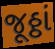
જૂઠ્ઠાં